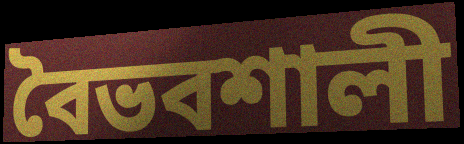
বৈভবশালী